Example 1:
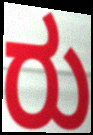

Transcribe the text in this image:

ರು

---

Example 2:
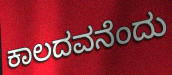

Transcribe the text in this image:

ಕಾಲದವನೆಂದು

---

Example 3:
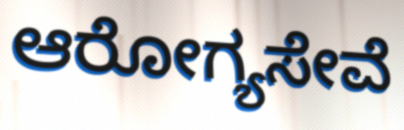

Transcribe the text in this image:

ಆರೋಗ್ಯಸೇವೆ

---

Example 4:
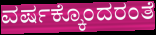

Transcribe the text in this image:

ವರ್ಷಕ್ಕೊಂದರಂತೆ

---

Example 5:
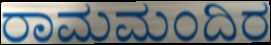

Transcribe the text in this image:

ರಾಮಮಂದಿರ